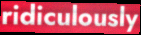
ridiculously